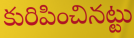
కురిపించినట్టు